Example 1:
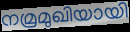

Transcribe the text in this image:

നമ്രമുഖിയായി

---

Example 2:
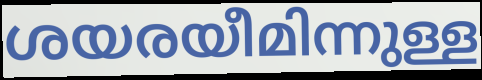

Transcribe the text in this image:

ശയരയീമിന്നുള്ള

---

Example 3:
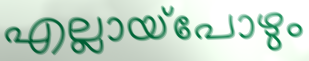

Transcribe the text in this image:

എല്ലായ്‌പോഴും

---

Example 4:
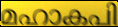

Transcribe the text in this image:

മഹാകപി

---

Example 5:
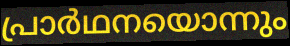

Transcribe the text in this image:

പ്രാർഥനയൊന്നും